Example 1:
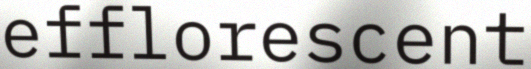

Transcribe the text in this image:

efflorescent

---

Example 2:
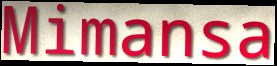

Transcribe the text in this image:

Mimansa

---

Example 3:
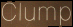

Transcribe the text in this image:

Clump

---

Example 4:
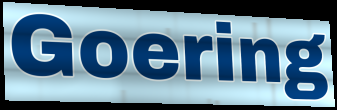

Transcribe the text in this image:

Goering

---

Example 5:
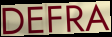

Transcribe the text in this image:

DEFRA